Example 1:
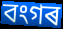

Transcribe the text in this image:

বংগৰ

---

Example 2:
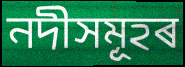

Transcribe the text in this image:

নদীসমূহৰ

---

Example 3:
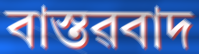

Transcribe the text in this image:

বাস্তৱবাদ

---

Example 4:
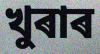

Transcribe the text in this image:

খুৰাৰ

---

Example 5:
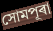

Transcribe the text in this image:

সোমপূৰা